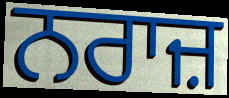
ਨਰਾਜ਼